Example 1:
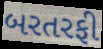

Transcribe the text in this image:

બરતરફી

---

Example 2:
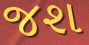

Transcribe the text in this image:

જશ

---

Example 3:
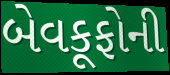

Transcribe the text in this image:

બેવકૂફોની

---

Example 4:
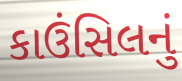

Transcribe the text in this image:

કાઉંસિલનું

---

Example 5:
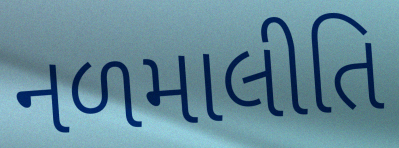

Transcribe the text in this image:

નળમાલીતિ